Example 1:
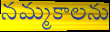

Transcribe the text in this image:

నమ్మకాలను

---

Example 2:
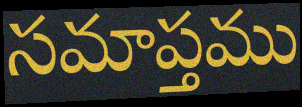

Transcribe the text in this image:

సమాప్తము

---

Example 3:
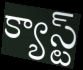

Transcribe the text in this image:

క్యాస్ట్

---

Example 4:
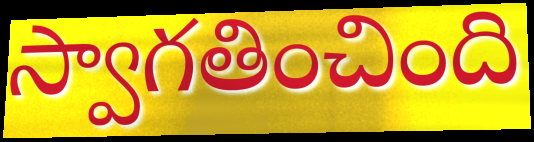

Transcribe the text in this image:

స్వాగతించింది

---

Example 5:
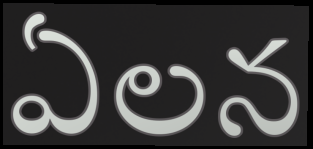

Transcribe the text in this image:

ఏలన